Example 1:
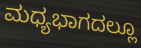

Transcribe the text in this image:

ಮಧ್ಯಭಾಗದಲ್ಲೂ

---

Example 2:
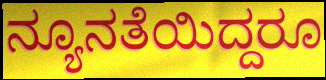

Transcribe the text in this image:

ನ್ಯೂನತೆಯಿದ್ದರೂ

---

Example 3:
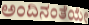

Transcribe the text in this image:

ಅಂದಿನಂತೆಯೇ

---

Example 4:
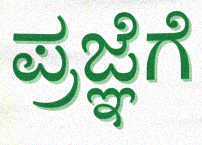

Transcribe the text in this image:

ಪ್ರಜ್ಞೆಗೆ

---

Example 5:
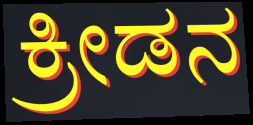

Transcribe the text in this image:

ಕ್ರೀಡನ